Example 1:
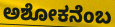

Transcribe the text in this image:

ಅಶೋಕನೆಂಬ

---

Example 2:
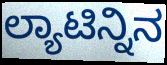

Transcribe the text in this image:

ಲ್ಯಾಟಿನ್ನಿನ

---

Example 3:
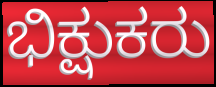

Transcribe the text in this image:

ಭಿಕ್ಷುಕರು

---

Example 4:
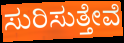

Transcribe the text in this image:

ಸುರಿಸುತ್ತೇವೆ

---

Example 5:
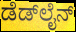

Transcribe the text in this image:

ಡೆಡ್‍ಲೈನ್